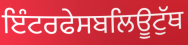
ਇੰਟਰਫੇਸਬਲਿਊਟੁੱਥ